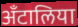
अँटालिया